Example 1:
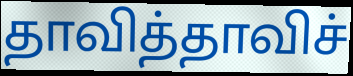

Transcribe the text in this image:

தாவித்தாவிச்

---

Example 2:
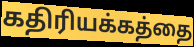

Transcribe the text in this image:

கதிரியக்கத்தை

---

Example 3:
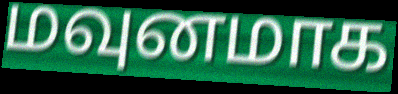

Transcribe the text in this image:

மவுனமாக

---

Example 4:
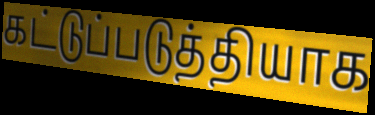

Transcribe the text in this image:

கட்டுப்படுத்தியாக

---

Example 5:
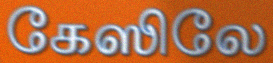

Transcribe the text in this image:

கேஸிலே